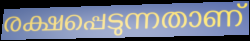
രക്ഷപ്പെടുന്നതാണ്